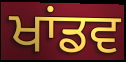
ਖਾਂਡਵ